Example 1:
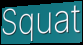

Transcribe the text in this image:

Squat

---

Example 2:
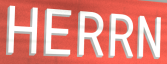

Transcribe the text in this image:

HERRN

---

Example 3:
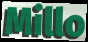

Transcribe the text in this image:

Millo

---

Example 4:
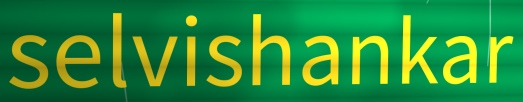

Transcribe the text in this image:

selvishankar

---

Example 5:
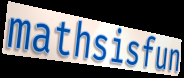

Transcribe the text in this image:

mathsisfun